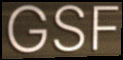
GSF